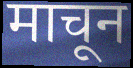
माचून